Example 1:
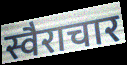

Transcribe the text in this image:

स्वैराचार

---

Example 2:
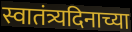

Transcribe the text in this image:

स्वातंत्र्यदिनाच्या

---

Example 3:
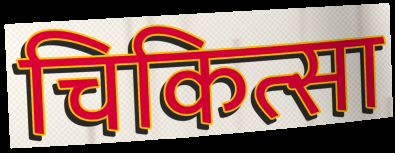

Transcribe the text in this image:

चिकित्सा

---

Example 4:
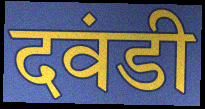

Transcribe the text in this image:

दवंडी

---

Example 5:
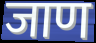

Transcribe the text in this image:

जाण